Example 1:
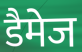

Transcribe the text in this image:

डैमेज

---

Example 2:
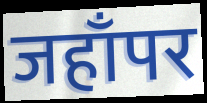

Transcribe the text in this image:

जहाँपर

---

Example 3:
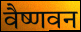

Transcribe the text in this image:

वैष्णवन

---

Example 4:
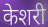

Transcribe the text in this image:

केशरी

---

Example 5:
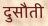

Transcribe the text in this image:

दुसौती